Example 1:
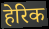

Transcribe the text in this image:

हेरिक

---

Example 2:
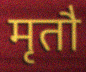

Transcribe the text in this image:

मृतौ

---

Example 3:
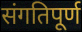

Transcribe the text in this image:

संगतिपूर्ण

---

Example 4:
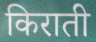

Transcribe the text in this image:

किराती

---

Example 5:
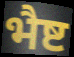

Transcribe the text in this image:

भैष्ट